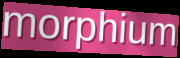
morphium